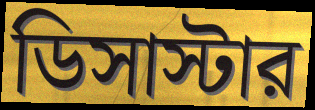
ডিসাস্টার